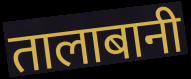
तालाबानी